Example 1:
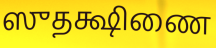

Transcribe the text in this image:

ஸுதக்ஷிணை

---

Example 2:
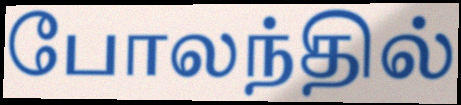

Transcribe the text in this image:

போலந்தில்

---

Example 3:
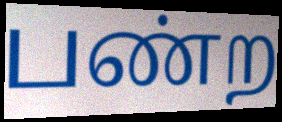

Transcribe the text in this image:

பண்ற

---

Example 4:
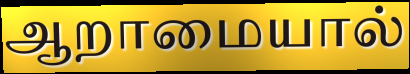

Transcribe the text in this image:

ஆறாமையால்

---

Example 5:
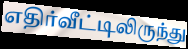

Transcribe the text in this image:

எதிர்வீட்டிலிருந்து